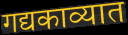
गद्यकाव्यात